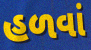
હળવાં